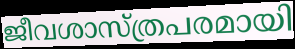
ജീവശാസ്ത്രപരമായി